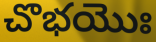
చొభయొః